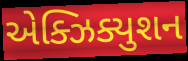
એક્ઝિક્યુશન